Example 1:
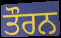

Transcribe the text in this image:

ਤੌਰਨ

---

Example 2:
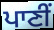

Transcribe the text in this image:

ਪਾਣੀਂ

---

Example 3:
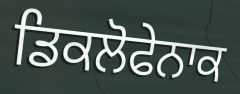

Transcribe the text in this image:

ਡਿਕਲੋਫੇਨਾਕ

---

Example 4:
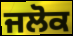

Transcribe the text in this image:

ਜਲੋਕ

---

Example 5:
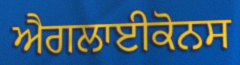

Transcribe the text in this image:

ਐਗਲਾਈਕੋਨਸ